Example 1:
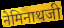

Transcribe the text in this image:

नेमिनाथजी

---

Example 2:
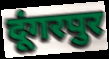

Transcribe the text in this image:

दूंगरपुर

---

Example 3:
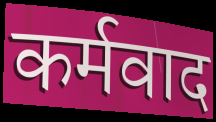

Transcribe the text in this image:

कर्मवाद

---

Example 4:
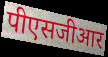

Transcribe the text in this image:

पीएसजीआर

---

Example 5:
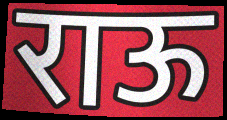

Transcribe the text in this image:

राऊ